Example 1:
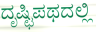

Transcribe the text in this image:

ದೃಷ್ಟಿಪಥದಲ್ಲಿ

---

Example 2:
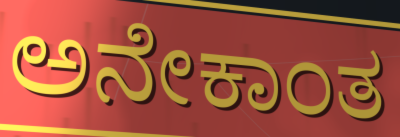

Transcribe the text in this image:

ಅನೇಕಾಂತ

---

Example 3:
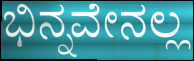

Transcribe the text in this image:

ಭಿನ್ನವೇನಲ್ಲ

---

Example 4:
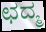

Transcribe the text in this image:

ಛದ್ಮ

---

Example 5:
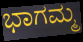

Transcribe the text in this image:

ಭಾಗಮ್ಮ